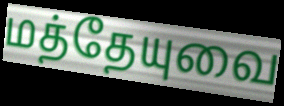
மத்தேயுவை